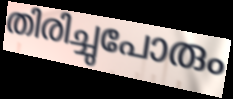
തിരിച്ചുപോരും